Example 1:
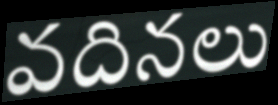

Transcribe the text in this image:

వదినలు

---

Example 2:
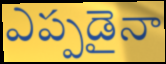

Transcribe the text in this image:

ఎప్పడైనా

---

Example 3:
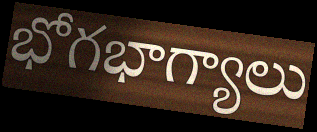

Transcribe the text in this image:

భోగభాగ్యాలు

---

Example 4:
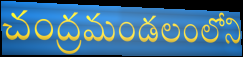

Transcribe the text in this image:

చంద్రమండలంలోని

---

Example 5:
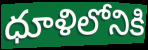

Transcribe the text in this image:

ధూళిలోనికి